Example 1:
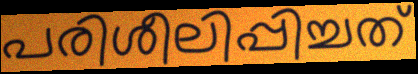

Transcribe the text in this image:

പരിശീലിപ്പിച്ചത്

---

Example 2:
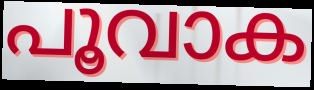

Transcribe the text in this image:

പൂവാക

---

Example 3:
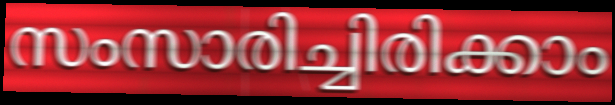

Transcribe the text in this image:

സംസാരിച്ചിരിക്കാം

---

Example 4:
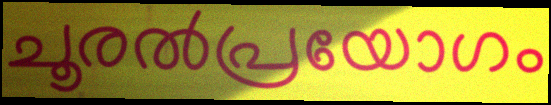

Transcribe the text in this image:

ചൂരൽപ്രയോഗം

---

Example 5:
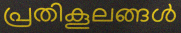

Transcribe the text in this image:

പ്രതികൂലങ്ങൾ